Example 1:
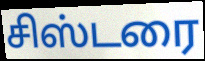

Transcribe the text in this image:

சிஸ்டரை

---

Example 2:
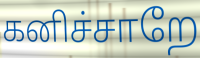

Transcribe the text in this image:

கனிச்சாறே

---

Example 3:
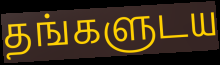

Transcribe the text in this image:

தங்களுடய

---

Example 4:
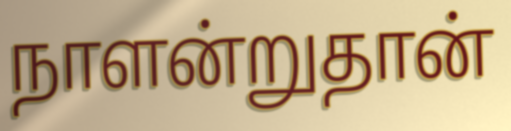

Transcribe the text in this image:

நாளன்றுதான்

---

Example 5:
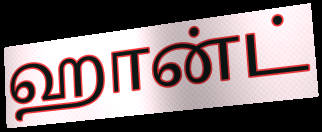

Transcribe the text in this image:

ஹான்ட்